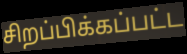
சிறப்பிக்கப்பட்ட